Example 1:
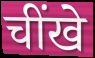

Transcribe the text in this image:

चींखे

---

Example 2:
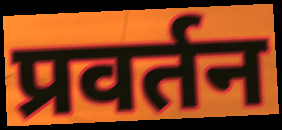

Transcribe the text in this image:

प्रवर्तन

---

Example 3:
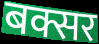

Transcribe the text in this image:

बक्सर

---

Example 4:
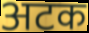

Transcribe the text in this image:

अटक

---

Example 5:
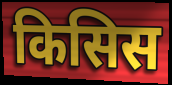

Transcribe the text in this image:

किसिस